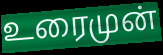
உரைமுன்